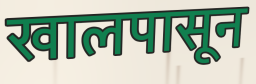
खालपासून